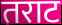
तराट